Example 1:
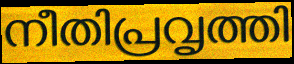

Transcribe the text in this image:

നീതിപ്രവൃത്തി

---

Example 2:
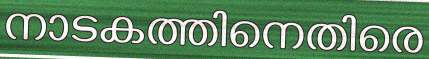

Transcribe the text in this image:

നാടകത്തിനെതിരെ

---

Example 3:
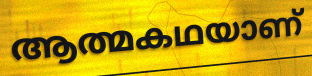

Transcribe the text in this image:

ആത്മകഥയാണ്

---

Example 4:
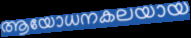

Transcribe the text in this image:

ആയോധനകലയായ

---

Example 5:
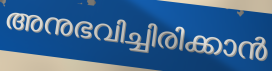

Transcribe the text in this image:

അനുഭവിച്ചിരിക്കാൻ